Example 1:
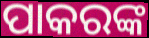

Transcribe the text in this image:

ପାକରଙ୍କ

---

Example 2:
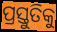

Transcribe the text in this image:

ପ୍ରସ୍ତୁତିକୁ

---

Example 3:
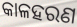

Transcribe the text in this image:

କାଳହରଣ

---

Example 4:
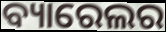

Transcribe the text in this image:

ବ୍ୟାରେଲର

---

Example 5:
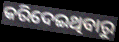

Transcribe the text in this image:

କରିଦେଇଥିବାରୁ